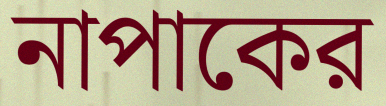
নাপাকের